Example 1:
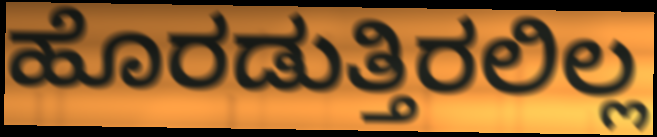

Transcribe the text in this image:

ಹೊರಡುತ್ತಿರಲಿಲ್ಲ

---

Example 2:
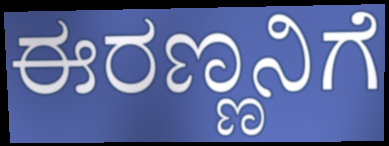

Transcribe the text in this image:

ಈರಣ್ಣನಿಗೆ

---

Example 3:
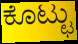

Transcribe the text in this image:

ಕೊಟ್ಟು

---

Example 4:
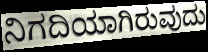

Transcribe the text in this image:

ನಿಗದಿಯಾಗಿರುವುದು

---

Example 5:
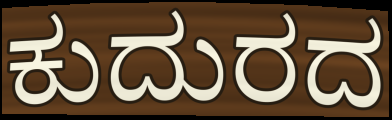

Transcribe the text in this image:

ಕುದುರದ